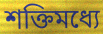
শক্তিমধ্যে